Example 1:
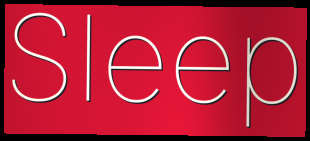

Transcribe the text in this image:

Sleep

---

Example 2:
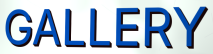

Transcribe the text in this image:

GALLERY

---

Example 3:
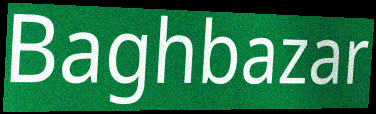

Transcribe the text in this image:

Baghbazar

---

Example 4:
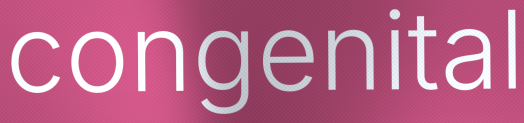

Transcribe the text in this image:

congenital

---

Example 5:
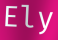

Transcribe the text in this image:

Ely